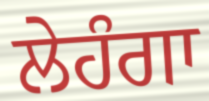
ਲੇਹੰਗਾ